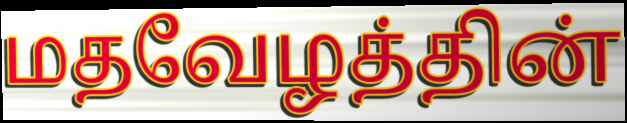
மதவேழத்தின்